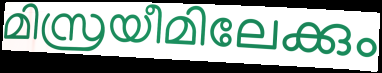
മിസ്രയീമിലേക്കും